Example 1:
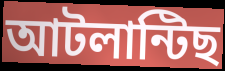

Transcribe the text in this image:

আটলান্টিছ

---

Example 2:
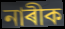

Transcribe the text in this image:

নাৰীক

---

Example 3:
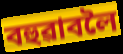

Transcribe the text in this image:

বহুৱাবলৈ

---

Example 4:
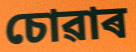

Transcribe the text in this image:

চোৱাৰ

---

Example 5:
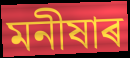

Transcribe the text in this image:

মনীষাৰ